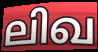
ലിഖ